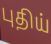
புதிய்